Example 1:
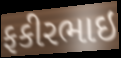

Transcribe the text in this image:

ફકીરભાઇ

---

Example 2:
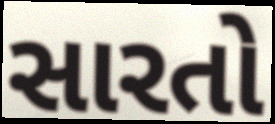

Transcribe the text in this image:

સારતો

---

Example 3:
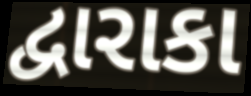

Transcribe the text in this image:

દ્વારાકા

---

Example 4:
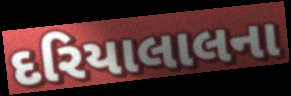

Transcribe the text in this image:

દરિયાલાલના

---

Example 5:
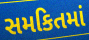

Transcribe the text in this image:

સમકિતમાં